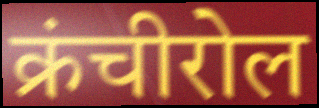
क्रंचीरोल